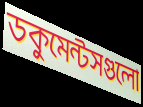
ডকুমেন্টসগুলো